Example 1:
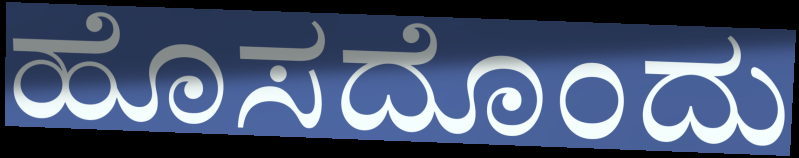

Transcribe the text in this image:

ಹೊಸದೊಂದು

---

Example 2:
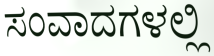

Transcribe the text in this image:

ಸಂವಾದಗಳಲ್ಲಿ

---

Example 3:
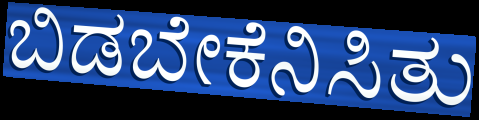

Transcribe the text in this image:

ಬಿಡಬೇಕೆನಿಸಿತು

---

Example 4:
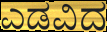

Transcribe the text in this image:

ಎಡವಿದ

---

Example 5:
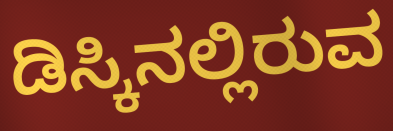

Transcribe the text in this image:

ಡಿಸ್ಕಿನಲ್ಲಿರುವ